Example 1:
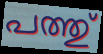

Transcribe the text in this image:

പത്തു്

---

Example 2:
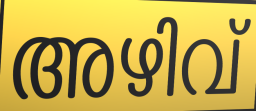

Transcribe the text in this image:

അഴിവ്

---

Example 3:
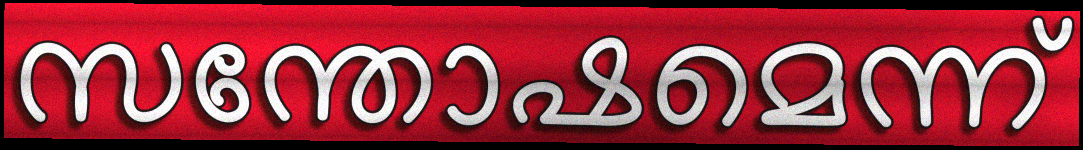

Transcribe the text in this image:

സന്തോഷമെന്ന്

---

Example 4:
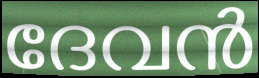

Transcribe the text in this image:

ദേവൻ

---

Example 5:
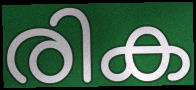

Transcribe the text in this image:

രിക